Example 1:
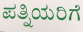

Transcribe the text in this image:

ಪತ್ನಿಯರಿಗೆ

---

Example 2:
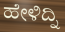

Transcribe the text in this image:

ಹೇಳಿದ್ನಿ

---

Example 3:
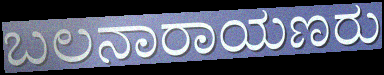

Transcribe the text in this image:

ಬಲನಾರಾಯಣರು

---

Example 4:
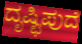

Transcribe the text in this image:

ದೃಷ್ಟಿಪುದೆ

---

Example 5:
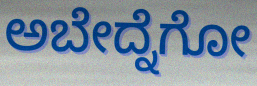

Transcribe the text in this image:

ಅಬೇದ್ನೆಗೋ